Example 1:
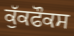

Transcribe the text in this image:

ਕੁੱਕਫੌਕਸ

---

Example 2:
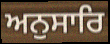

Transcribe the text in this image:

ਅਨੁਸਾਰਿ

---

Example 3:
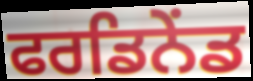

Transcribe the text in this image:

ਫਰਡਿਨੇਂਡ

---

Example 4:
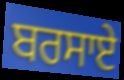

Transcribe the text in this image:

ਬਰਸਾਏ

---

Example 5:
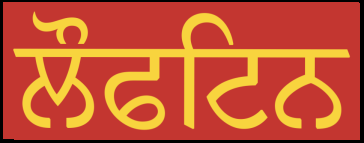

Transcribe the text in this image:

ਲੌਫਟਿਨ